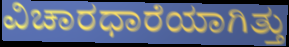
ವಿಚಾರಧಾರೆಯಾಗಿತ್ತು